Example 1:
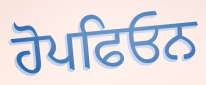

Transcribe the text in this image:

ਹੋਪਫਿਓਨ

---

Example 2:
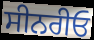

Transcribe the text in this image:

ਸੀਨਰੀਓ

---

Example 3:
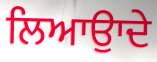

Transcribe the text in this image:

ਲਿਆਉਾਦੇ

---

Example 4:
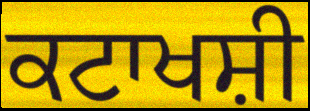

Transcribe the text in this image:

ਕਟਾਖਸ਼ੀ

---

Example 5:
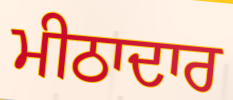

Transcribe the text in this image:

ਮੀਠਾਦਾਰ